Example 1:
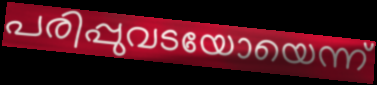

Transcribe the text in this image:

പരിപ്പുവടയോയെന്ന്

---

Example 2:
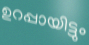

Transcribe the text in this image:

ഉറപ്പായിട്ടും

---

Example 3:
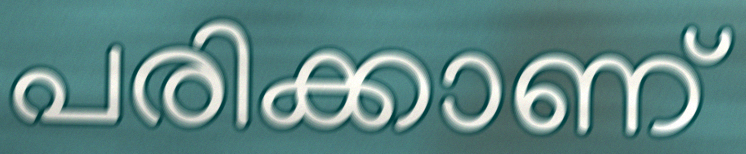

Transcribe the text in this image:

പരിക്കാണ്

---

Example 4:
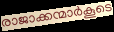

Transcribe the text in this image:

രാജാക്കന്മാർകൂടെ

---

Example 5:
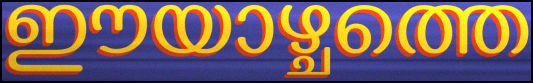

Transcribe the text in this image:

ഈയാഴ്ചത്തെ